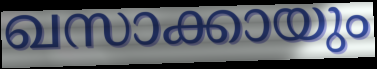
ഖസാക്കായും